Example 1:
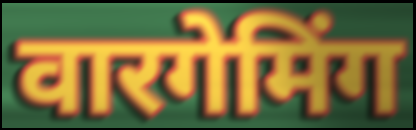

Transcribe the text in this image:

वारगेमिंग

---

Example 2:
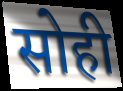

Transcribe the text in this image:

सोही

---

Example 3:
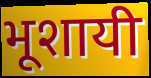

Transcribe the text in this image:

भूशायी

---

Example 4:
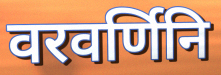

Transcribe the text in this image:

वरवर्णिनि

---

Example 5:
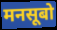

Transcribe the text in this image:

मनसूबो